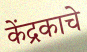
केंद्रकाचे